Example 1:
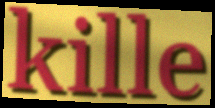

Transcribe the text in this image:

kille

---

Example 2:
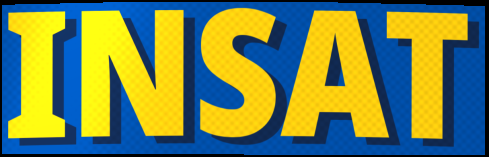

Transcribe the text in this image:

INSAT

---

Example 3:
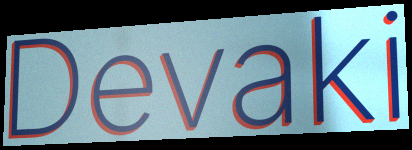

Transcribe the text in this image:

Devaki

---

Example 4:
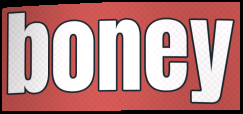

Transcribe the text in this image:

boney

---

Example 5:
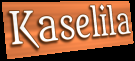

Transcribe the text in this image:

Kaselila